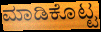
ಮಾಡಿಕೊಟ್ಟ